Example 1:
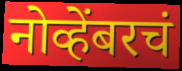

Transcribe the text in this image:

नोव्हेंबरचं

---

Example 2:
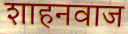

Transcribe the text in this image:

शाहनवाज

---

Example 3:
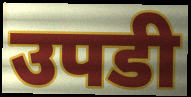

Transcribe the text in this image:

उपडी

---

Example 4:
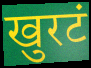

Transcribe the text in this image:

खुरटं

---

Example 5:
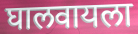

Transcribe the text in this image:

घालवायला